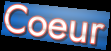
Coeur